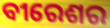
ବୀରେଶର